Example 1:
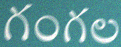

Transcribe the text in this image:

గంగల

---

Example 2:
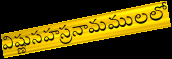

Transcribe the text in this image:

విష్ణుసహస్రనామములలో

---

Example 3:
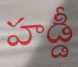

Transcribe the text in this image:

హడ్డీ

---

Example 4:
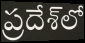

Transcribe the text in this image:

ప్రదేశ్‌లో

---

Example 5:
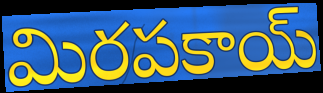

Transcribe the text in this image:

మిరపకాయ్